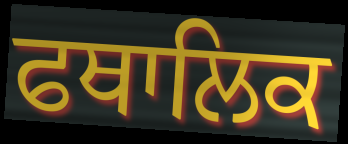
ਫਥਾਲਿਕ